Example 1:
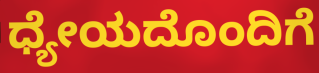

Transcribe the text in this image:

ಧ್ಯೇಯದೊಂದಿಗೆ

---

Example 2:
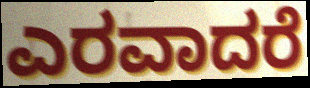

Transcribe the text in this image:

ಎರವಾದರೆ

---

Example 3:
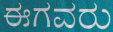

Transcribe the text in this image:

ಈಗವರು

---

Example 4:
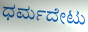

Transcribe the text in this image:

ಧರ್ಮದೇಟು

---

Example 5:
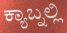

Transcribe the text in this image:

ಕ್ಯಾಬ್ನಲ್ಲಿ